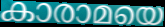
കാരാമയെ